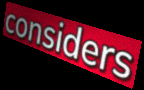
considers